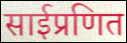
साईप्रणित